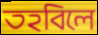
তহবিলে